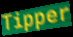
Tipper